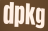
dpkg